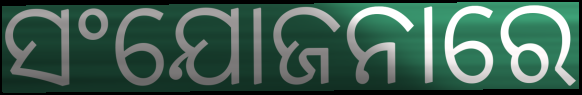
ସଂଯୋଜନାରେ